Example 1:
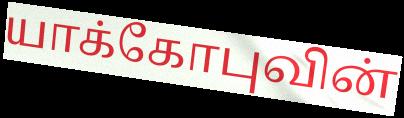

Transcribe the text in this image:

யாக்கோபுவின்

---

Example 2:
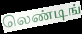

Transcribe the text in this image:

லெண்டிங்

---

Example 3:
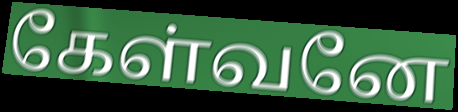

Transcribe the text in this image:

கேள்வனே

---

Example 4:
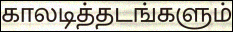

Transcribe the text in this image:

காலடித்தடங்களும்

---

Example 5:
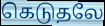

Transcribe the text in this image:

கெடுதலே